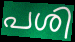
പശി